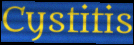
Cystitis